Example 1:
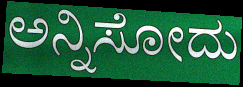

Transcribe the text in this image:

ಅನ್ನಿಸೋದು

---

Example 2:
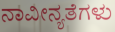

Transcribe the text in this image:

ನಾವೀನ್ಯತೆಗಳು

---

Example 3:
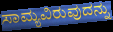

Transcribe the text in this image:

ಸಾಮ್ಯವಿರುವುದನ್ನು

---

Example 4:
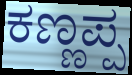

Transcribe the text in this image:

ಕಣ್ಣಪ್ಪ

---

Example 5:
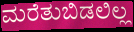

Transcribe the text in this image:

ಮರೆತುಬಿಡಲಿಲ್ಲ